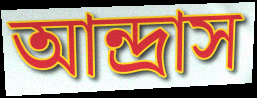
আন্দ্রাস